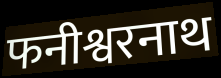
फनीश्वरनाथ